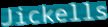
Jickells